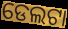
ଡେଲଟା